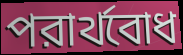
পরার্থবোধ